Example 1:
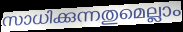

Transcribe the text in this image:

സാധിക്കുന്നതുമെല്ലാം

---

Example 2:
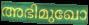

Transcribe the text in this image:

അഭിമുഖോ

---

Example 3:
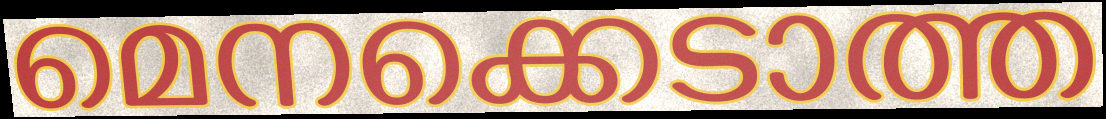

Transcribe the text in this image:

മെനക്കെടാത്ത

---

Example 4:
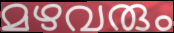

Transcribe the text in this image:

മഴവരും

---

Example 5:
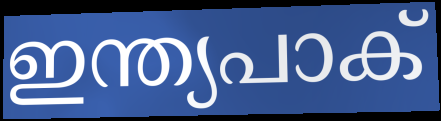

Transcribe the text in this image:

ഇന്ത്യപാക്